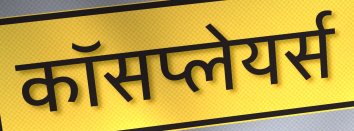
कॉसप्लेयर्स